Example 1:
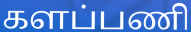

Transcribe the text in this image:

களப்பணி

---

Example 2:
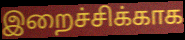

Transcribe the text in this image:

இறைச்சிக்காக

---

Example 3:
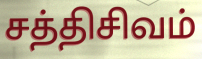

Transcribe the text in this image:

சத்திசிவம்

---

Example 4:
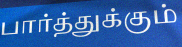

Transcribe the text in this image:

பார்த்துக்கும்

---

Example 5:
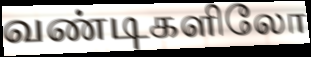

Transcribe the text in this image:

வண்டிகளிலோ